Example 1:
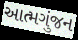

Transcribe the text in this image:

આત્મગુંજન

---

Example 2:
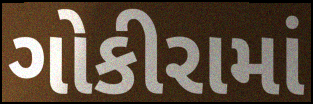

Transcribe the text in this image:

ગોકીરામાં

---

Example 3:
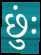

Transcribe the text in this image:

છુંઃ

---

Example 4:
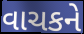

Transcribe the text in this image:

વાચકને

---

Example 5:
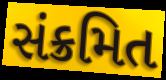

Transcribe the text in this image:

સંક્રમિત